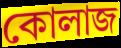
কোলাজ